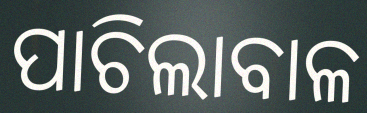
ପାଚିଲାବାଳ